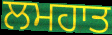
ਲਮਹਾਤ